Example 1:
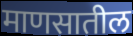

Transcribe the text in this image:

माणसातील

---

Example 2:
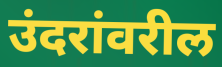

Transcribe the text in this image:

उंदरांवरील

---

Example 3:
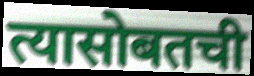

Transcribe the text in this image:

त्यासोबतची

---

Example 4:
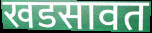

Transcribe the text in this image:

खडसावत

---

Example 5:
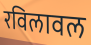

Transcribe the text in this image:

रविलावल